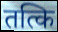
तत्कि